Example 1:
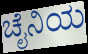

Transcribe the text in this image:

ಚೈನಿಯ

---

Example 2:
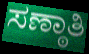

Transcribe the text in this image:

ಸಣ್ಠಾತಿ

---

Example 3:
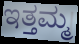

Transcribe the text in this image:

ಇತ್ತಮ್ಮ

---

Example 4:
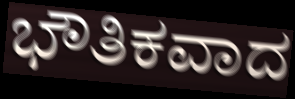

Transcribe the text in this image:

ಭೌತಿಕವಾದ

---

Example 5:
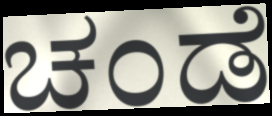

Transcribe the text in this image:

ಚಂಡೆ